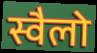
स्वैलो